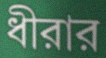
ধীরার